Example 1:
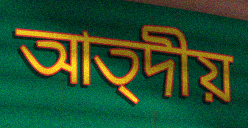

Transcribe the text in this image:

আত্দীয়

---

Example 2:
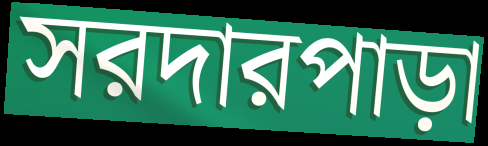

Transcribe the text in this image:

সরদারপাড়া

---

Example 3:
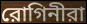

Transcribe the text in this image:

রোগিনীরা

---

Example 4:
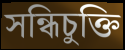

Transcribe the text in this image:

সন্ধিচুক্তি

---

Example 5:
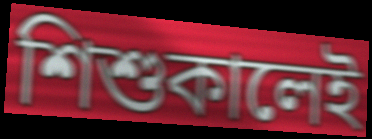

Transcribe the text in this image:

শিশুকালেই